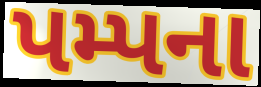
પમ્પના